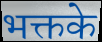
भक्तके